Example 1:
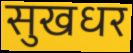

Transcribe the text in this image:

सुखधर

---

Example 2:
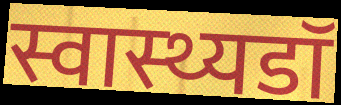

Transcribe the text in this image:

स्वास्थ्यडॉ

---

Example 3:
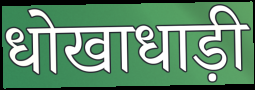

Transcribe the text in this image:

धोखाधाड़ी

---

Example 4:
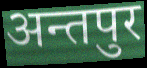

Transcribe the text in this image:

अन्तपुर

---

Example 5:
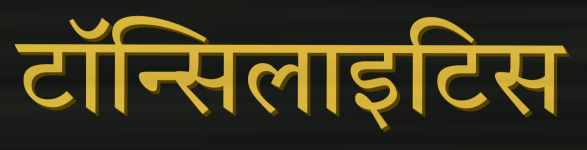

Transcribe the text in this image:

टॉन्सिलाइटिस